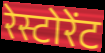
रेस्टोरेंट